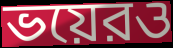
ভয়েরও